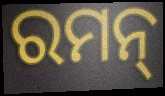
ରମନ୍